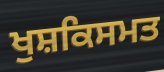
ਖੁਸ਼ਕਿਸਮਤ